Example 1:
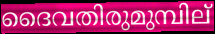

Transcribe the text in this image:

ദൈവതിരുമുമ്പില്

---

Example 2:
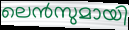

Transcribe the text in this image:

ലെൻസുമായി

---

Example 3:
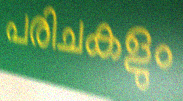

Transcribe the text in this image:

പരിചകളും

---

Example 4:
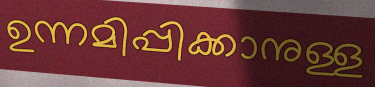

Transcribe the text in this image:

ഉന്നമിപ്പിക്കാനുള്ള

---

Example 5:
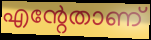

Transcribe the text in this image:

എന്റേതാണ്